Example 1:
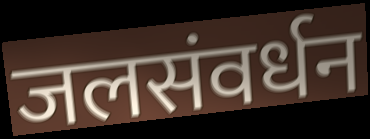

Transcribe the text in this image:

जलसंवर्धन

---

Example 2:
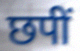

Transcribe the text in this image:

छपीं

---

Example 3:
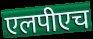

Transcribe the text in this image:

एलपीएच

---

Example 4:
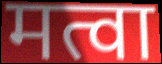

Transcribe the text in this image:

मत्वा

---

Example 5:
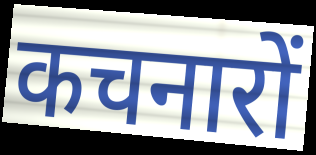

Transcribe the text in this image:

कचनारों